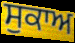
ਸੁਕਾਅ